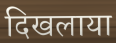
दिखलाया